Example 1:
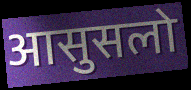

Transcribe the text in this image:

आसुसलो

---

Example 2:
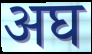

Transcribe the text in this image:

अघ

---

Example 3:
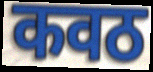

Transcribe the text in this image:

कवठ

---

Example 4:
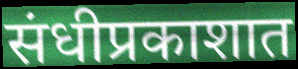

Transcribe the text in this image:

संधीप्रकाशात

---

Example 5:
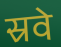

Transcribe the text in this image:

स्रवे